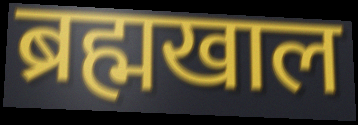
ब्रह्मखाल